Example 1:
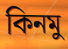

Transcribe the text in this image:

কিনমু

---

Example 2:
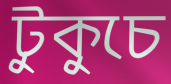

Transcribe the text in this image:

টুকুচে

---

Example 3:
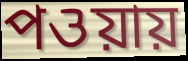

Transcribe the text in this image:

পওয়ায়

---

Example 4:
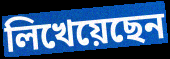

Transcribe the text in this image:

লিখেয়েছেন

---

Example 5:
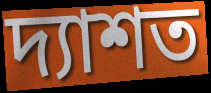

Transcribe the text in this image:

দ্যাশত